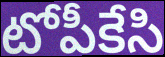
టోపీకేసి